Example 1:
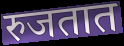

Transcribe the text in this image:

रुजतात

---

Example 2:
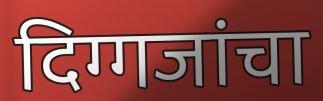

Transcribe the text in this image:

दिग्गजांचा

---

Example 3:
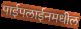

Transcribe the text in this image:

पाईपलाईनमधील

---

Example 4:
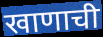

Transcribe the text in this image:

खाणाची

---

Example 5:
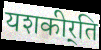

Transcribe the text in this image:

यशकीर्ति